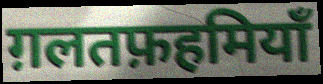
ग़लतफ़हमियाँ